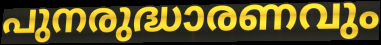
പുനരുദ്ധാരണവും